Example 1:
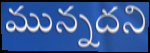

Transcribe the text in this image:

మున్నదని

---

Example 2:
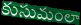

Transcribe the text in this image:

కుసుమంలా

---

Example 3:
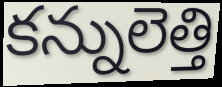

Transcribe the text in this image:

కన్నులెత్తి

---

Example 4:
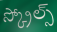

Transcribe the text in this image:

స్క్రోల్స్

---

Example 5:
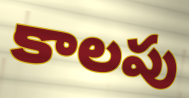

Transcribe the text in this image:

కాలపు